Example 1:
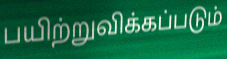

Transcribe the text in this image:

பயிற்றுவிக்கப்படும்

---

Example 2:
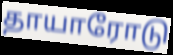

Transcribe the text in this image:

தாயாரோடு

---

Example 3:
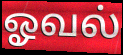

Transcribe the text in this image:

ஓவல்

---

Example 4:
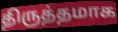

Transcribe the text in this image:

திருத்தமாக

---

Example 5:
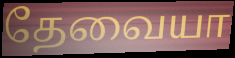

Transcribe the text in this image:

தேவையா